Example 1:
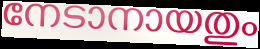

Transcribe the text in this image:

നേടാനായതും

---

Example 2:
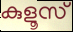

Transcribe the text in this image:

കുളൂസ്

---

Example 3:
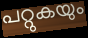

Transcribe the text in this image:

പറ്റുകയും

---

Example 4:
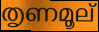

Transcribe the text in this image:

തൃണമൂല്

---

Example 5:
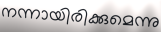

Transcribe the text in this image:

നന്നായിരിക്കുമെന്നു